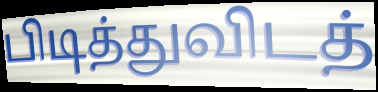
பிடித்துவிடத்